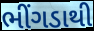
ભીંગડાથી